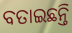
ବତାଇଛନ୍ତି